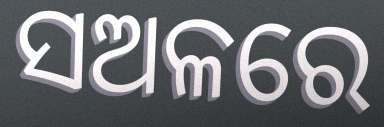
ସଅଳରେ